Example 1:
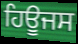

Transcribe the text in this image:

ਹਿਊਜਸ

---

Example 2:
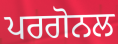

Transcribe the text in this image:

ਪਰਗੋਨਲ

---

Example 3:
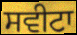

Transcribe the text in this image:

ਸਵੀਟਾ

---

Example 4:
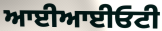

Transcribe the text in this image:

ਆਈਆਈਓਟੀ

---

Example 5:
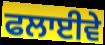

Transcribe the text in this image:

ਫਲਾਈਵੇ